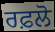
ਰਫ਼ਲੋ